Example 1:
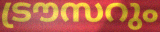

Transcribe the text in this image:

ട്രൗസറും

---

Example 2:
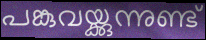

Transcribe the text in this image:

പങ്കുവയ്ക്കുന്നുണ്ട്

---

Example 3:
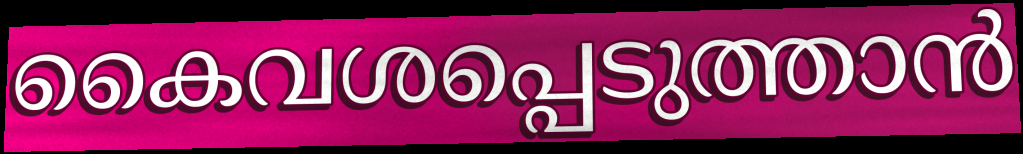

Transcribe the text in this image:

കൈവശപ്പെടുത്താൻ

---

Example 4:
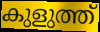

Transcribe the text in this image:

കുളുത്ത്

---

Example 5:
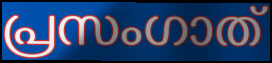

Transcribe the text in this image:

പ്രസംഗാത്